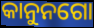
କାନୁନଗୋ